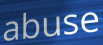
abuse